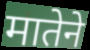
मातेने